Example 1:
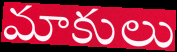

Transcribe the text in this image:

మాకులు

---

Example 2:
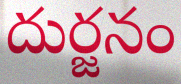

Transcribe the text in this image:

దుర్జనం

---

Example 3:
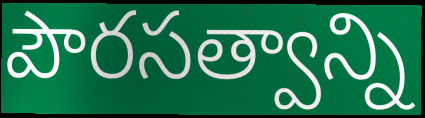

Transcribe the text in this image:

పౌరసత్వాన్ని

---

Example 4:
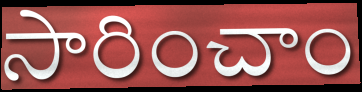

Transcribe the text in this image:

సారించాం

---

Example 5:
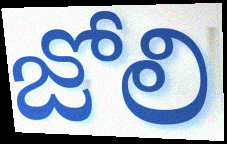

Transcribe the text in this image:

జోలి